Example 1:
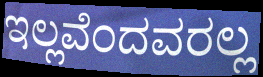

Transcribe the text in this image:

ಇಲ್ಲವೆಂದವರಲ್ಲ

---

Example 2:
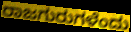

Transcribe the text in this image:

ರಾಜಗುರುಗಳೆಂದು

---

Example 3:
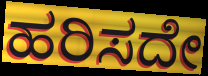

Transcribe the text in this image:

ಹರಿಸದೇ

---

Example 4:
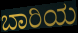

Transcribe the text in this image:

ಬಾರಿಯ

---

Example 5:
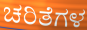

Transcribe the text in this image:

ಚರಿತೆಗಳ